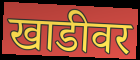
खाडीवर